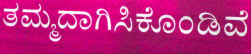
ತಮ್ಮದಾಗಿಸಿಕೊಂಡಿವೆ